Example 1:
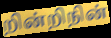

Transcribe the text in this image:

றின்றிநின்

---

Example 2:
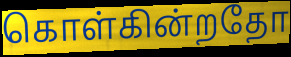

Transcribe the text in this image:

கொள்கின்றதோ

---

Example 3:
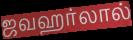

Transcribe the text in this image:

ஜவஹர்லால்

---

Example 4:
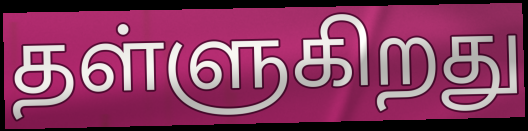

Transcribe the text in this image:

தள்ளுகிறது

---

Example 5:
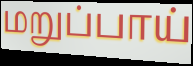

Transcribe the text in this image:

மறுப்பாய்